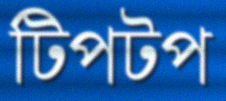
টিপটপ